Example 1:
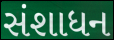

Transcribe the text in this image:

સંશાધન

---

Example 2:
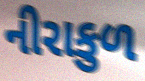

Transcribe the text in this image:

નીરાકુળ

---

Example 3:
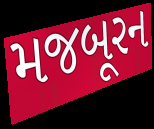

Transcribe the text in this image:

મજબૂરન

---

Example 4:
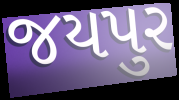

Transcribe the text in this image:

જયપુર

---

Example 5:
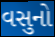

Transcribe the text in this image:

વસુનો